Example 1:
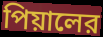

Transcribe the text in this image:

পিয়ালের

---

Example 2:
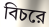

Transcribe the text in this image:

বিচরে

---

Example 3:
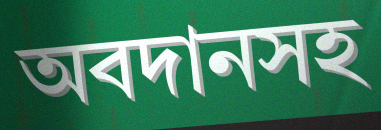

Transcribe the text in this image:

অবদানসহ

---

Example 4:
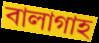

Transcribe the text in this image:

বালাগাহ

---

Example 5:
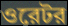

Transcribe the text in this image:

ওরেটর